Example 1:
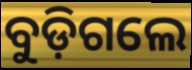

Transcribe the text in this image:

ବୁଡ଼ିଗଲେ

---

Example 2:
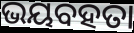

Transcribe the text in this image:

ଭୟବହତା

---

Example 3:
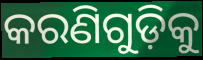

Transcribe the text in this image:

କରଣିଗୁଡ଼ିକୁ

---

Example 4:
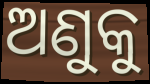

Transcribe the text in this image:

ଅଣୁକୁ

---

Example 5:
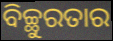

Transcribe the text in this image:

ବିଚ୍ଛୁରତାର